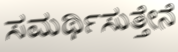
ಸಮರ್ಥಿಸುತ್ತೇನೆ